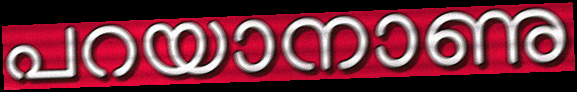
പറയാനാണു